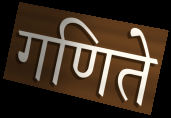
गणिते